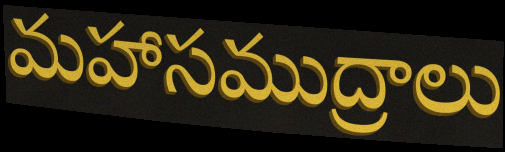
మహాసముద్రాలు